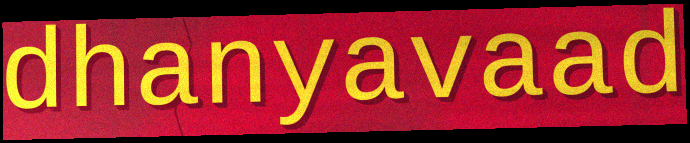
dhanyavaad